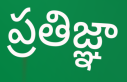
ప్రతిజ్ఞా